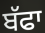
ਬੱਫਾ